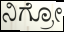
ನಿಗ್ರೋ